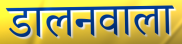
डालनवाला